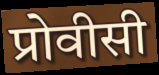
प्रोवीसी